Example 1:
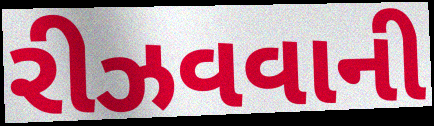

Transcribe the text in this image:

રીઝવવાની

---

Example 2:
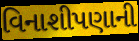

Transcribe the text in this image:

વિનાશીપણાની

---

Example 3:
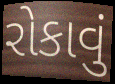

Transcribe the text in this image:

રોકાવું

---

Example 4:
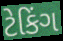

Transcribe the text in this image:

ટેકિંગ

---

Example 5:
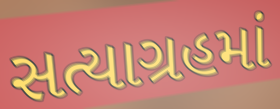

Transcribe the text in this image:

સત્યાગ્રહમાં